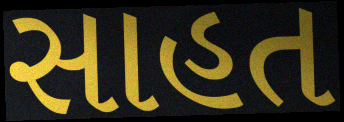
સાહત